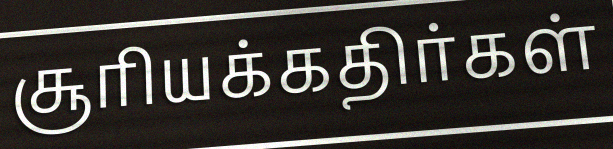
சூரியக்கதிர்கள்